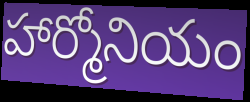
హార్మోనియం